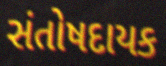
સંતોષદાયક